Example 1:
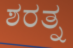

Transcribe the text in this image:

ಶರತ್ನ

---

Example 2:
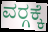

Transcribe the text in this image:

ವರ‍್ಗಕ್ಕೆ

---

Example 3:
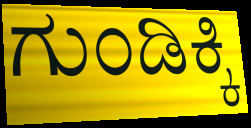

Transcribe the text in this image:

ಗುಂಡಿಕ್ಕಿ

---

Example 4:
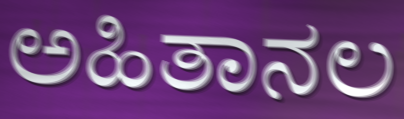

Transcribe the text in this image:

ಅಹಿತಾನಲ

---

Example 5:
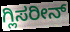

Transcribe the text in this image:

ಗ್ಲಿಸರೀನ್